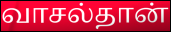
வாசல்தான்